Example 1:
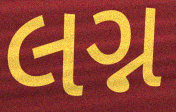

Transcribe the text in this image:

લગ્ન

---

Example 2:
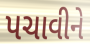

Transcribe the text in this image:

પચાવીને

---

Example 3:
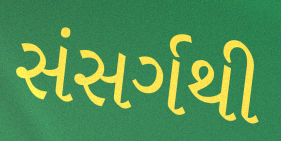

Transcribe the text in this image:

સંસર્ગથી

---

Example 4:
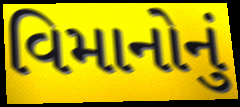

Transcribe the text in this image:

વિમાનોનું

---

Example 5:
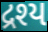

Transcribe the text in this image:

દ્રશ્ય